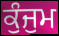
ਕੁੰਜੁਮ